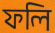
ফলি